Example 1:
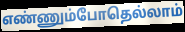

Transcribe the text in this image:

எண்ணும்போதெல்லாம்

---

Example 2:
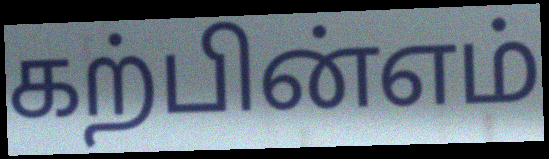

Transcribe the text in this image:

கற்பின்எம்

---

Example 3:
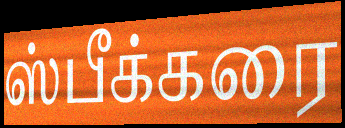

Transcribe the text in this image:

ஸ்பீக்கரை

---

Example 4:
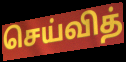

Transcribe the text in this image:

செய்வித்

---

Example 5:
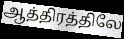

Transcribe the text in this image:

ஆத்திரத்திலே